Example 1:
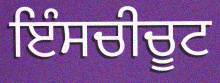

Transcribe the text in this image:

ਇੰਸਚੀਚੂਟ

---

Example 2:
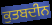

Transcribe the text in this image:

ਕੁਤਬਦੀਨ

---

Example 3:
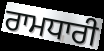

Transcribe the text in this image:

ਰਾਮਧਾਰੀ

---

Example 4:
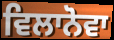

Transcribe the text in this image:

ਵਿਲਾਨੋਵਾ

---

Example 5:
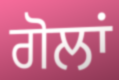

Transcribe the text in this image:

ਗੋਲਾਂ